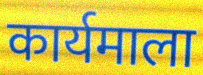
कार्यमाला